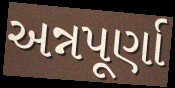
અન્નપૂર્ણા